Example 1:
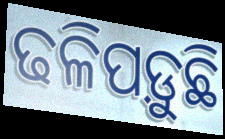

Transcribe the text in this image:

ଢଳିପଡ଼ୁଛି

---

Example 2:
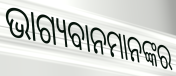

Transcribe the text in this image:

ଭାଗ୍ୟବାନମାନଙ୍କର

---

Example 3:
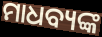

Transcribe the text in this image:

ମାଧବ୍ୟଙ୍କ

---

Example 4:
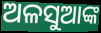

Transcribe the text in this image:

ଅଳସୁଆଙ୍କ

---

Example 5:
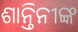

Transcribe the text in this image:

ଶାନ୍ତିନୀଙ୍କ